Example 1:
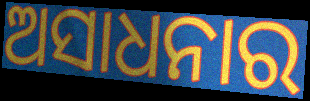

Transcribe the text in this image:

ଅସାଧନାର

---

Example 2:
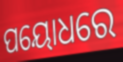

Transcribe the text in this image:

ପୟୋଧରେ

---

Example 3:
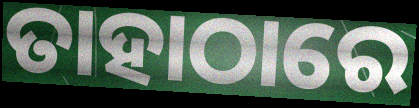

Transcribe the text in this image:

ତାହାଠାରେ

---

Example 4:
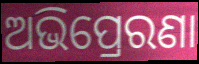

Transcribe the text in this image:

ଅଭିପ୍ରେରଣା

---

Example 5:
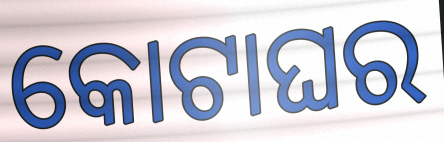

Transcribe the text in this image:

କୋଟାଘର